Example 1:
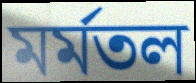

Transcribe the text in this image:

মর্মতল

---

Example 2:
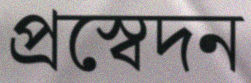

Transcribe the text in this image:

প্রস্বেদন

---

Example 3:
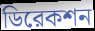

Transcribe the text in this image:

ডিরেকশন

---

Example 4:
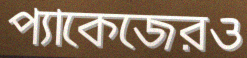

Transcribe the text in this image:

প্যাকেজেরও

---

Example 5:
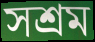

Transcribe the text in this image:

সশ্রম